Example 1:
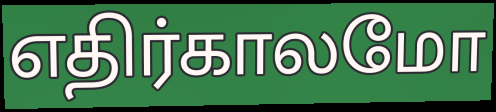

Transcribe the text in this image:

எதிர்காலமோ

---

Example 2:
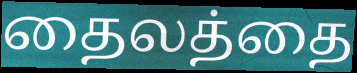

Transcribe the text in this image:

தைலத்தை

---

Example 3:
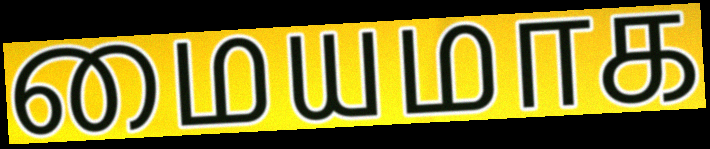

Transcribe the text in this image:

மையமாக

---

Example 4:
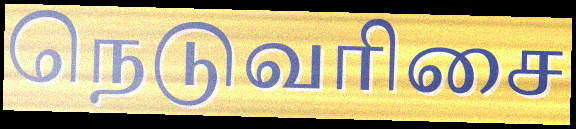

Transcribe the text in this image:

நெடுவரிசை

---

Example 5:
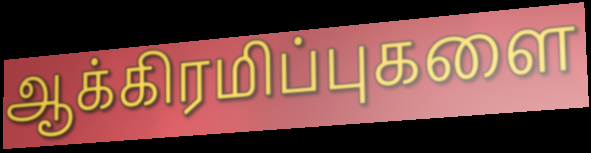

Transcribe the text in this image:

ஆக்கிரமிப்புகளை